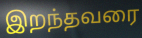
இறந்தவரை